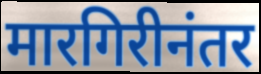
मारगिरीनंतर